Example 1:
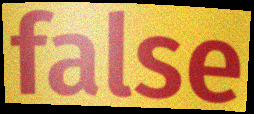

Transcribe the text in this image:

false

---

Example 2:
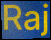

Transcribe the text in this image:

Raj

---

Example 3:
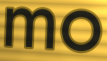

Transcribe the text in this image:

mo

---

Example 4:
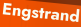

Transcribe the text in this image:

Engstrand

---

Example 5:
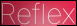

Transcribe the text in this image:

Reflex